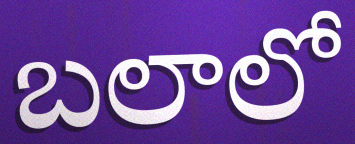
బలాలో